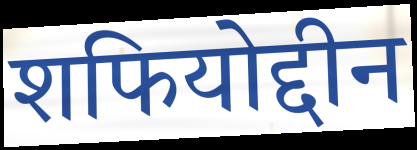
शफियोद्दीन